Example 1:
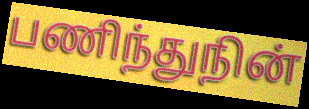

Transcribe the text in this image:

பணிந்துநின்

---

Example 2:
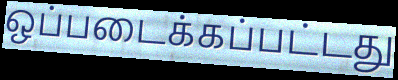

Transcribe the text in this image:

ஒப்படைக்கப்பட்டது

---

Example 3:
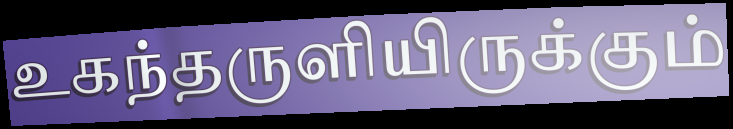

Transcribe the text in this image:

உகந்தருளியிருக்கும்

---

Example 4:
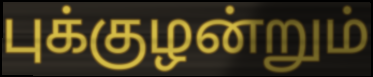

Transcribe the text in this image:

புக்குழன்றும்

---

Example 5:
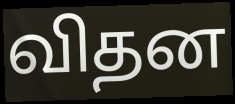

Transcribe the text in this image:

விதன